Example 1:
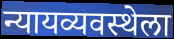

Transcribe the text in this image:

न्यायव्यवस्थेला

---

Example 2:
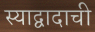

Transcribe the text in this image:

स्याद्वादाची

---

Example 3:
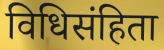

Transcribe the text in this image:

विधिसंहिता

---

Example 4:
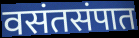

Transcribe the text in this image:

वसंतसंपात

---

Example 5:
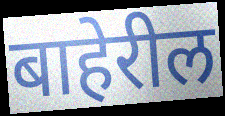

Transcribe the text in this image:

बाहेरील